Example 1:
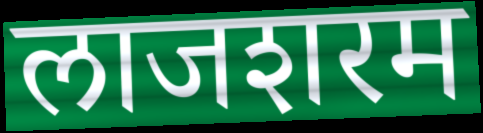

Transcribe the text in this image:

लाजशरम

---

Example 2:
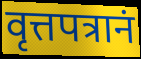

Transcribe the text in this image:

वृत्तपत्रानं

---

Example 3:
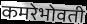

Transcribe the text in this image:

कमरेभोवती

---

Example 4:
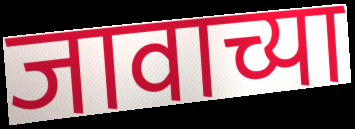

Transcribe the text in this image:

जावाच्या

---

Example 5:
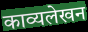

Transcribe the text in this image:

काव्यलेखन